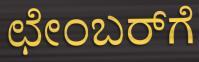
ಛೇಂಬರ್‌ಗೆ